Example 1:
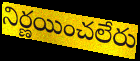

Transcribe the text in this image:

నిర్ణయించలేరు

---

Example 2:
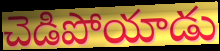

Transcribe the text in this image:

చెడిపోయాడు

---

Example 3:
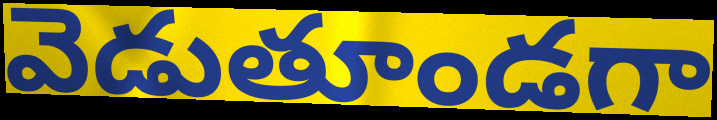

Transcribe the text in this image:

వెడుతూండగా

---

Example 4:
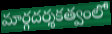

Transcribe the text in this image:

మార్గదర్శకత్వంలో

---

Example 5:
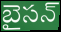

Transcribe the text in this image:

బైసన్